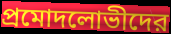
প্রমোদলোভীদের